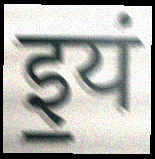
इ॒यं